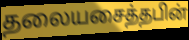
தலையசைத்தபின்